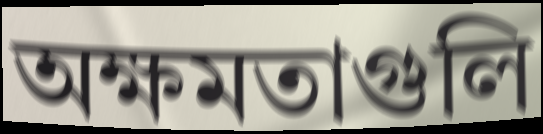
অক্ষমতাগুলি